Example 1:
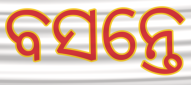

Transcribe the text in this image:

ବସନ୍ତେ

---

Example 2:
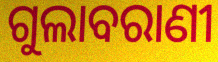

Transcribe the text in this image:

ଗୁଲାବରାଣୀ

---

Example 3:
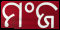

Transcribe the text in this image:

ମଂଜ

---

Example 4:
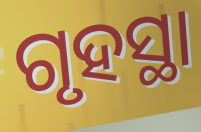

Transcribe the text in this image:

ଗୃହସ୍ଥା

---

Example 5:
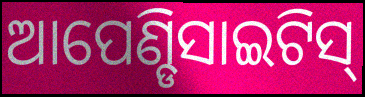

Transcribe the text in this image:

ଆପେଣ୍ଡିସାଇଟିସ୍